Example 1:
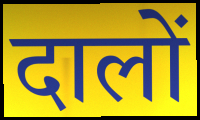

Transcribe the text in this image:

दालों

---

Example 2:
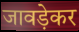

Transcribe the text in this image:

जावड़ेकर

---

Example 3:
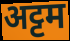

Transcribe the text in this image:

अट्टम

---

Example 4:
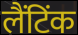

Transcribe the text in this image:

लैंटिंक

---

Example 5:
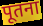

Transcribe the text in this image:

पूतना